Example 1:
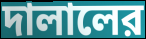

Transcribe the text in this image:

দালালের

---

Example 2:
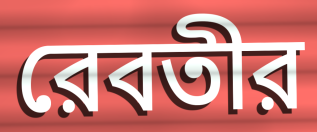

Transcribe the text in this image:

রেবতীর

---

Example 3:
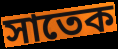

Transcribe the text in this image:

সাতেক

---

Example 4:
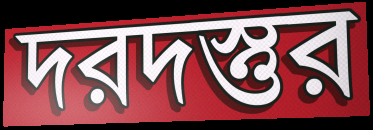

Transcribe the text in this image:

দরদস্তুর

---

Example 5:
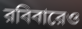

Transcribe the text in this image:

রবিবারেও